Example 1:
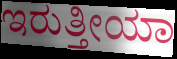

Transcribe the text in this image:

ಇರುತ್ತೀಯಾ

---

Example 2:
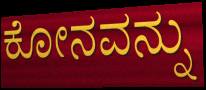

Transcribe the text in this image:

ಕೋನವನ್ನು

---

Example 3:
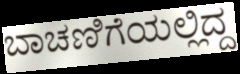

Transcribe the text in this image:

ಬಾಚಣಿಗೆಯಲ್ಲಿದ್ದ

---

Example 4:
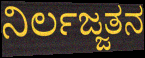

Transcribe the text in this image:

ನಿರ್ಲಜ್ಜತನ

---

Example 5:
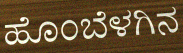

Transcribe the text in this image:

ಹೊಂಬೆಳಗಿನ